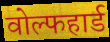
वोल्फहार्ड